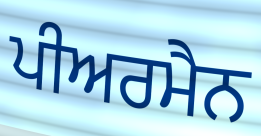
ਪੀਅਰਮੈਨ